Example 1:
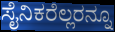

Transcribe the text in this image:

ಸೈನಿಕರೆಲ್ಲರನ್ನೂ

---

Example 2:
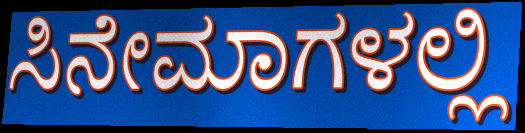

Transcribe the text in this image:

ಸಿನೇಮಾಗಳಲ್ಲಿ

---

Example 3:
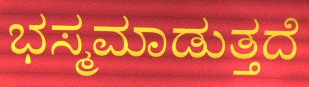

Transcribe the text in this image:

ಭಸ್ಮಮಾಡುತ್ತದೆ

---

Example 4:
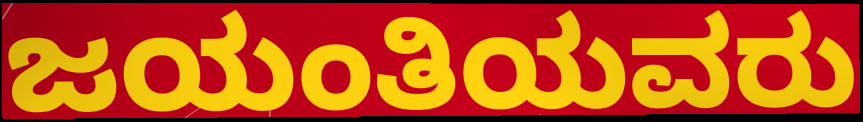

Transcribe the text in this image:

ಜಯಂತಿಯವರು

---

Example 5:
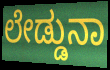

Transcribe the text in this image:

ಲೇಡ್ಡುನಾ